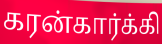
கரன்கார்க்கி